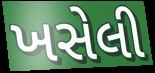
ખસેલી